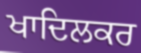
ਖਾਦਿਲਕਰ